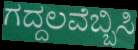
ಗದ್ದಲವೆಬ್ಬಿಸಿ